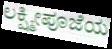
ಲಕ್ಷ್ಮೀಪೂಜೆಯ